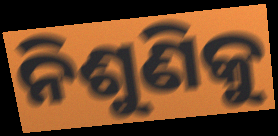
ନିଶୁଣିକୁ